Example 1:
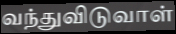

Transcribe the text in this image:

வந்துவிடுவாள்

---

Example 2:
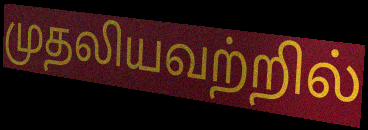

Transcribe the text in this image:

முதலியவற்றில்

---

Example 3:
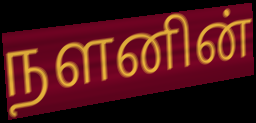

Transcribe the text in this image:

நளனின்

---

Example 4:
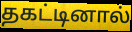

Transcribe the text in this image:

தகட்டினால்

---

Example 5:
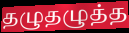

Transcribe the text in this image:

தழுதழுத்த